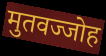
मुतवज्जोह